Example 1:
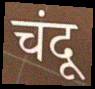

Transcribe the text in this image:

चंदू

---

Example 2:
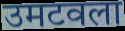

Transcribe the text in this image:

उमटवला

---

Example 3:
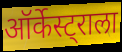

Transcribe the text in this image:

ऑर्केस्ट्राला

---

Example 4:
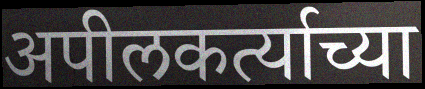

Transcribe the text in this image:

अपीलकर्त्याच्या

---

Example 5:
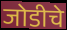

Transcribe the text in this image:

जोडीचे